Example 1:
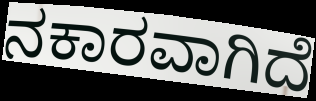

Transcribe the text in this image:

ನಕಾರವಾಗಿದೆ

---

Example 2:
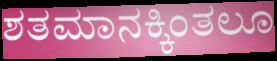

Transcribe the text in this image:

ಶತಮಾನಕ್ಕಿಂತಲೂ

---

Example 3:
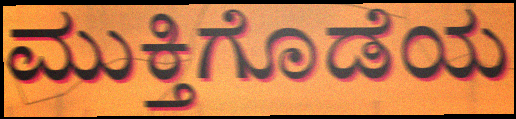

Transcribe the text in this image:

ಮುಕ್ತಿಗೊಡೆಯ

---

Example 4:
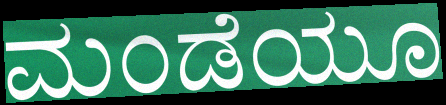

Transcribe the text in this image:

ಮಂಡೆಯೂ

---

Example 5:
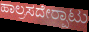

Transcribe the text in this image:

ಹಾಲ್ರಸದೇರ‍್ಪಾಟು